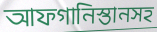
আফগানিস্তানসহ